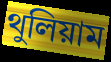
থুলিয়াম